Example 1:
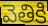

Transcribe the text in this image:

వెతికి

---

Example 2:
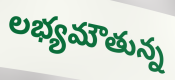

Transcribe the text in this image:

లభ్యమౌతున్న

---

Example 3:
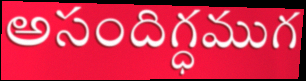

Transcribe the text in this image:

అసందిగ్ధముగ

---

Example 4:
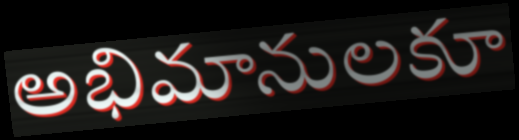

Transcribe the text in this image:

అభిమానులకూ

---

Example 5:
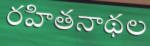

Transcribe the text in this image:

రహితనాథల